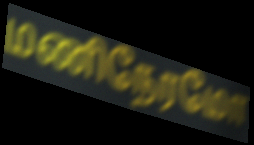
மணிநேரமோ